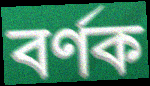
বৰ্ণক